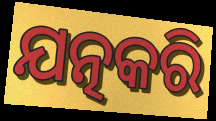
ଯତ୍ନକରି